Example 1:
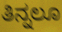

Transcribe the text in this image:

ತಿನ್ನಲೂ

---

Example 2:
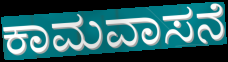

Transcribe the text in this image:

ಕಾಮವಾಸನೆ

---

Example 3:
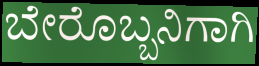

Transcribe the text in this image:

ಬೇರೊಬ್ಬನಿಗಾಗಿ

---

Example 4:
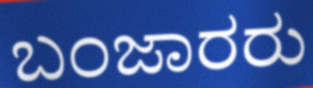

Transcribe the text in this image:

ಬಂಜಾರರು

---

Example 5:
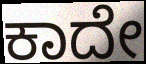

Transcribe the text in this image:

ಕಾದೇ